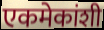
एकमेकांशी